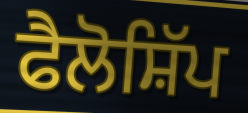
ਫੈਲੋਸ਼ਿੱਪ